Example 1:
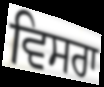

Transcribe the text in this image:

ਵਿਸਰਾ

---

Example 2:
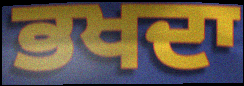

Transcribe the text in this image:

ਭਖਦਾ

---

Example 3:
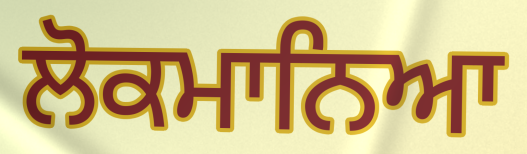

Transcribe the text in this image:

ਲੋਕਮਾਨਿਆ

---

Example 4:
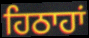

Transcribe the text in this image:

ਹਿਠਾਹਾਂ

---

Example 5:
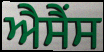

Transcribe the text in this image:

ਐਸੈਂਸ